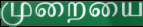
முறையை